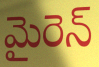
మైరెన్